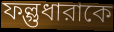
ফল্গুধারাকে